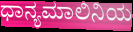
ಧಾನ್ಯಮಾಲಿನಿಯ